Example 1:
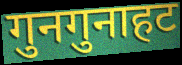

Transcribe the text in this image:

गुनगुनाहट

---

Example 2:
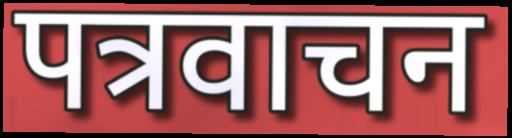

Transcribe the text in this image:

पत्रवाचन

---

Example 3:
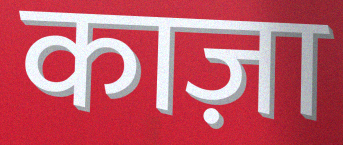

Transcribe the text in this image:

काज़ा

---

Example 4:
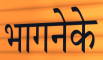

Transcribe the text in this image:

भागनेके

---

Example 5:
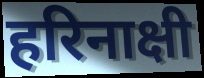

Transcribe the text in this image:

हरिनाक्षी